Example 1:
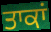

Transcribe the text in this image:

ਤਾਕਾਂ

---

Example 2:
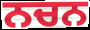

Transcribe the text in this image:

ਨਚਨ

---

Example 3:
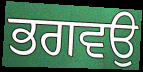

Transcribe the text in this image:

ਭਗਵਉ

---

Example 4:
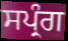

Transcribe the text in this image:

ਸਪ੍ਰੰਗ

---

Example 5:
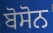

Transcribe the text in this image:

ਬੋਸੋਨ